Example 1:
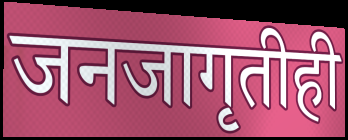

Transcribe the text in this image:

जनजागृतीही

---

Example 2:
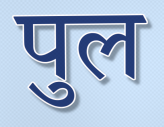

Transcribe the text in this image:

पुल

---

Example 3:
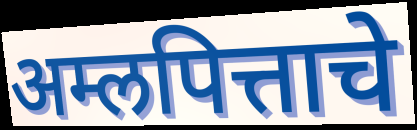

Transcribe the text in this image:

अम्लपित्ताचे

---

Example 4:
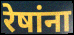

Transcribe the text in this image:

रेषांना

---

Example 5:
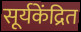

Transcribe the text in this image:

सूर्यकेंद्रित